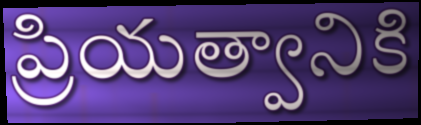
ప్రియత్వానికి